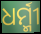
ଧର୍ମ୍ମୀ